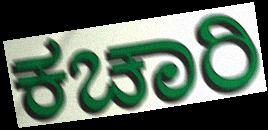
ಕಚಾರಿ